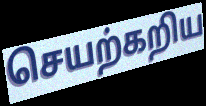
செயற்கறிய